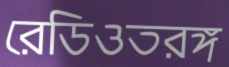
রেডিওতরঙ্গ